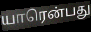
யாரென்பது